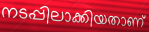
നടപ്പിലാക്കിയതാണ്